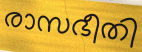
രാസഭീതി